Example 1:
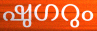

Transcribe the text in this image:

ഷുഗറും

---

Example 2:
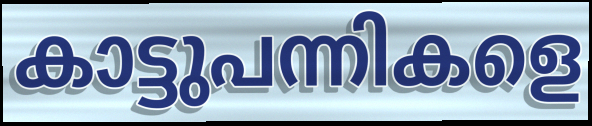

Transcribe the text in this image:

കാട്ടുപന്നികളെ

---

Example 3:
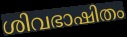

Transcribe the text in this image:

ശിവഭാഷിതം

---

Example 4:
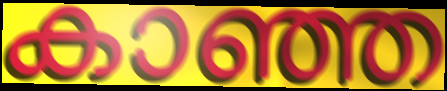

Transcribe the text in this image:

കാഞ്ഞ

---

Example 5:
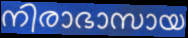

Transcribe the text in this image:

നിരാഭാസായ